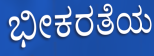
ಭೀಕರತೆಯ